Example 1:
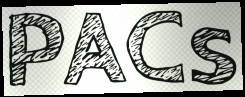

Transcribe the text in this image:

PACs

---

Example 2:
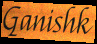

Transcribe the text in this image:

Ganishk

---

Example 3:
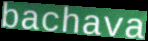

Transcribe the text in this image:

bachava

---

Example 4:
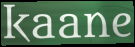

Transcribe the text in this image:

kaane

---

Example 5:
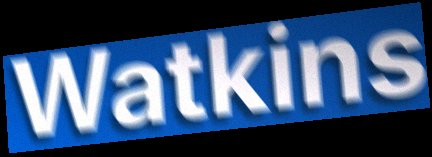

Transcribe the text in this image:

Watkins